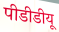
पीडीडीयू